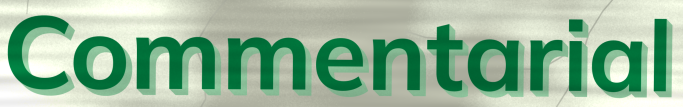
Commentarial